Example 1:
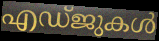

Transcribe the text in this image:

എഡ്ജുകൾ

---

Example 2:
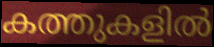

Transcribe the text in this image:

കത്തുകളിൽ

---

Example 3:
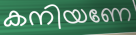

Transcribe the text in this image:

കനിയണേ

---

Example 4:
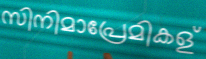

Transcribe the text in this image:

സിനിമാപ്രേമികള്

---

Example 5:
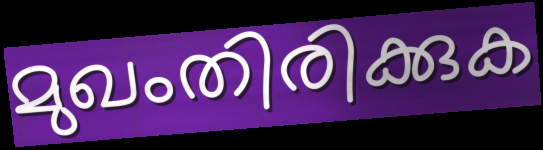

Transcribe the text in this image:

മുഖംതിരിക്കുക